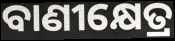
ବାଣୀକ୍ଷେତ୍ର